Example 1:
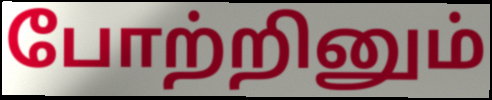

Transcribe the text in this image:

போற்றினும்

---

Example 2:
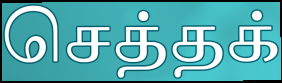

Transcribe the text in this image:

செத்தக்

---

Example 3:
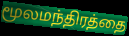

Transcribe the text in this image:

மூலமந்திரத்தை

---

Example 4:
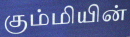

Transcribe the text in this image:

கும்மியின்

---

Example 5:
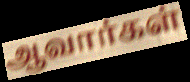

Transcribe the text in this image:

ஆவார்கள்